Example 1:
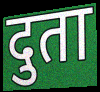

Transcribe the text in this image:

दुता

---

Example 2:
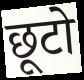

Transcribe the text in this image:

छूटो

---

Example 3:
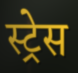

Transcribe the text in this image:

स्ट्रेस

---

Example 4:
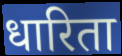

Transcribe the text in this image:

धारिता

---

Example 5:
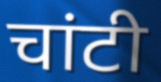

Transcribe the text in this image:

चांटी